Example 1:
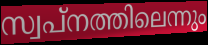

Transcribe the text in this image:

സ്വപ്നത്തിലെന്നും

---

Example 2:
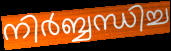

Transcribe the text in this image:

നിർബ്ബന്ധിച്ച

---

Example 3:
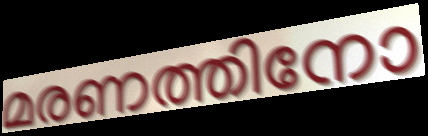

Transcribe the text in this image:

മരണത്തിനോ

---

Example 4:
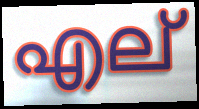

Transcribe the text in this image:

എല്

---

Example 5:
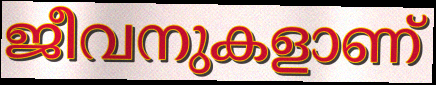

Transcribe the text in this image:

ജീവനുകളാണ്